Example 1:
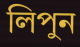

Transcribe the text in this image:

লিপুন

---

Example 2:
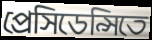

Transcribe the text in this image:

প্রেসিডেন্সিতে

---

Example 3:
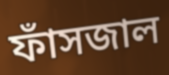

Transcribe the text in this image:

ফাঁসজাল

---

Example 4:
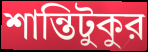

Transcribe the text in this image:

শান্তিটুকুর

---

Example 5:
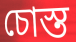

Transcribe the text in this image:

চোস্ত